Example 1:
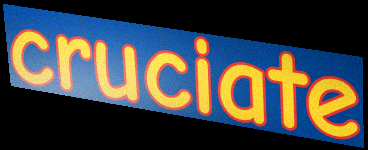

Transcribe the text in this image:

cruciate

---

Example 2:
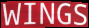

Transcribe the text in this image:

WINGS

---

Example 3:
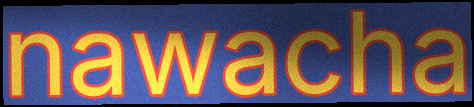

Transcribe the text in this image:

nawacha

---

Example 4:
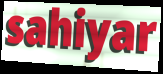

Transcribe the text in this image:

sahiyar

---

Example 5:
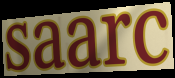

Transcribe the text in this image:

saarc